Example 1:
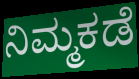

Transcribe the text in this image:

ನಿಮ್ಮಕಡೆ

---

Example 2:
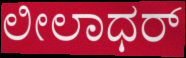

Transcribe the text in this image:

ಲೀಲಾಧರ್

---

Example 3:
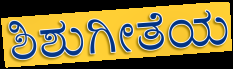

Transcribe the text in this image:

ಶಿಶುಗೀತೆಯ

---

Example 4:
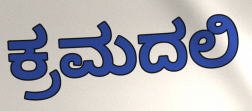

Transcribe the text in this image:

ಕ್ರಮದಲಿ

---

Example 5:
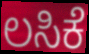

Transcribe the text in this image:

ಲಸಿಕೆ